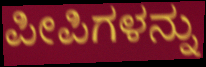
ಪೀಪಿಗಳನ್ನು